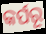
କର୍ପରୂ